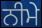
ਨੀਮੇ